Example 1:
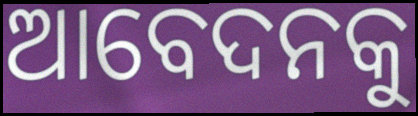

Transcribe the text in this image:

ଆବେଦନକୁ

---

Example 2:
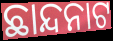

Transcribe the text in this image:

ଛାନ୍ଦନାଟ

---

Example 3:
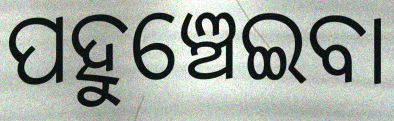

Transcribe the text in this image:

ପହୁଞ୍ଚେଇବା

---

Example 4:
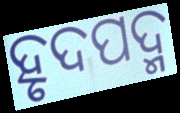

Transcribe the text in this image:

ହୃଦପଦ୍ମ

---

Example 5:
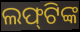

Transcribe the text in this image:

ଲଫ୍‌ଟିଙ୍କ